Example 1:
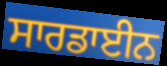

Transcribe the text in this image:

ਸਾਰਡਾਈਨ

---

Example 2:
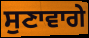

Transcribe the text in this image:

ਸੁਣਾਵਾਗੇ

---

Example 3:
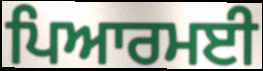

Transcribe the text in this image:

ਪਿਆਰਮਈ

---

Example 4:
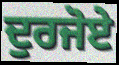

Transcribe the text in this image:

ਦੁਰਜੋਏ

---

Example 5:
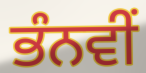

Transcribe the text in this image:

ਭੰਨਵੀਂ